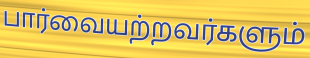
பார்வையற்றவர்களும்